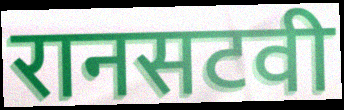
रानसटवी